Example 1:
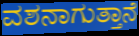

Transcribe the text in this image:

ವಶನಾಗುತ್ತಾನೆ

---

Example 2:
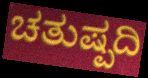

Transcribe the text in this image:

ಚತುಷ್ಪದಿ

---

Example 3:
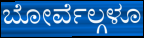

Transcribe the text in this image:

ಬೋರ್ವೆಲ್ಗಳೂ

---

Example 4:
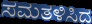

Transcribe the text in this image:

ಸಮತಳಿಸಿದ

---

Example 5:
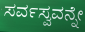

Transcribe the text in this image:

ಸರ್ವಸ್ವವನ್ನೇ